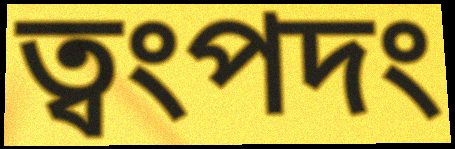
ত্বংপদং